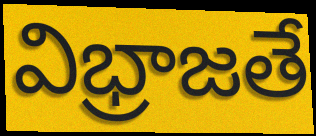
విభ్రాజతే